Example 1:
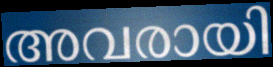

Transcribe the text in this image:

അവരായി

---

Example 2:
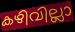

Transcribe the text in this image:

കഴിവില്ലാ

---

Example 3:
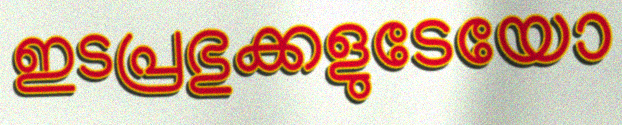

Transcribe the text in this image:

ഇടപ്രഭുക്കളുടേയോ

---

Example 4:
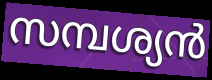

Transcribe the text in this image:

സമ്പശ്യൻ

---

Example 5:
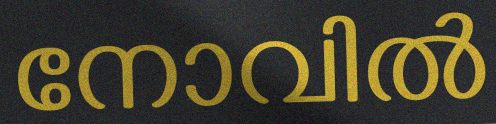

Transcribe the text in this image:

നോവിൽ